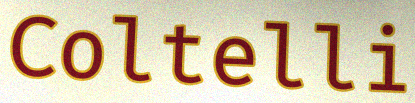
Coltelli